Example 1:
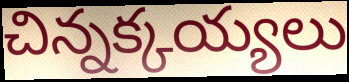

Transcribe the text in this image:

చిన్నక్కయ్యలు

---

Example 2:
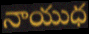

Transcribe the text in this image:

నాయుధ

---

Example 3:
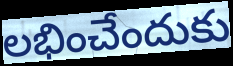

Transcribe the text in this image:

లభించేందుకు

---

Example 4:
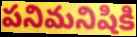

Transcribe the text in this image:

పనిమనిషికి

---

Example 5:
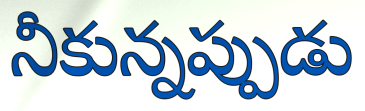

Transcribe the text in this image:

నీకున్నప్పుడు